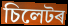
চিলেটৰ